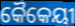
କୈକେୟୀ